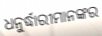
ଧନୁର୍ଦ୍ଧାରୀମାନଙ୍କର